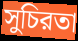
সুচিরতা